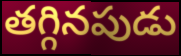
తగ్గినపుడు